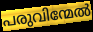
പരുവിന്മേൽ